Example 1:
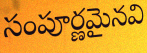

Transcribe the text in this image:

సంపూర్ణమైనవి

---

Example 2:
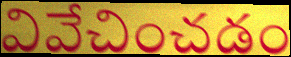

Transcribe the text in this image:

వివేచించడం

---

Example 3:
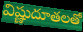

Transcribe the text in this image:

విష్ణుదూతలతో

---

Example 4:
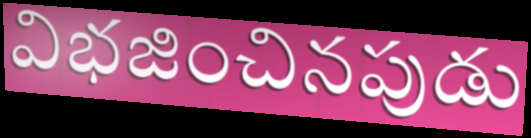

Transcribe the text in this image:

విభజించినపుడు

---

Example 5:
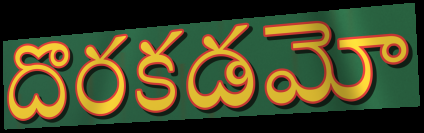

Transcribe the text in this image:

దొరకడమో